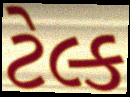
ટેલ્ક